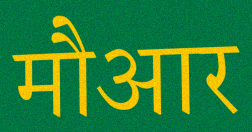
मौआर